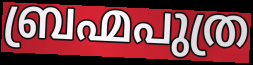
ബ്രഹ്മപുത്ര